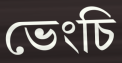
ভেংচি